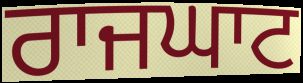
ਰਾਜਘਾਟ